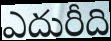
ఎదురీది